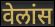
वेलांस